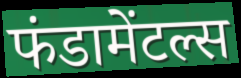
फंडामेंटल्स